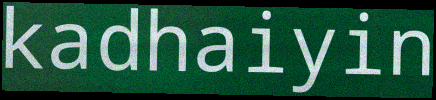
kadhaiyin